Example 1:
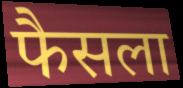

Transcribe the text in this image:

फैसला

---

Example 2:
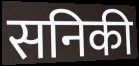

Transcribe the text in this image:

सनिकी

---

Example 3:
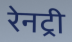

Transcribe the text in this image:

रेनट्री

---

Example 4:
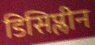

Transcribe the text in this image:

डिसिप्लीन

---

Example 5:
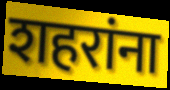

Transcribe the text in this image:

शहरांना